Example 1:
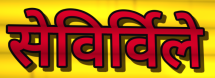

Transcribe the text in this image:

सेविर्विले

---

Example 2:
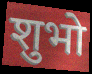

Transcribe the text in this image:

शुभो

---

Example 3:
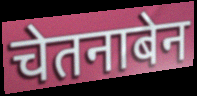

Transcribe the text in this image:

चेतनाबेन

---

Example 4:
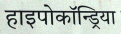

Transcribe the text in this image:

हाइपोकॉन्ड्रिया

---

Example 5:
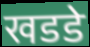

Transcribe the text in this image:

खडडे